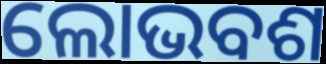
ଲୋଭବଶ